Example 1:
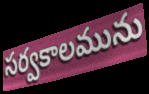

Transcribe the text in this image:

సర్వకాలమును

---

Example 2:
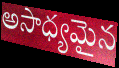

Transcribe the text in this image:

అసాధ్యమైన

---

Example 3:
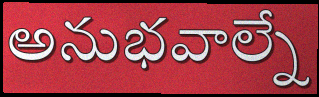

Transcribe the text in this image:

అనుభవాల్నే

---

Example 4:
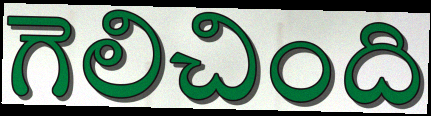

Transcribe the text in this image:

గెలిచింది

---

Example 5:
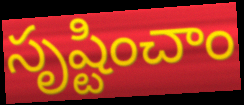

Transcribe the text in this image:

సృష్టించాం